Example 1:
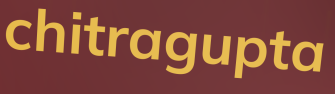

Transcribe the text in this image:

chitragupta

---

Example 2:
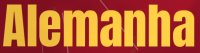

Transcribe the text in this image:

Alemanha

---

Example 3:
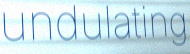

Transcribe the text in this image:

undulating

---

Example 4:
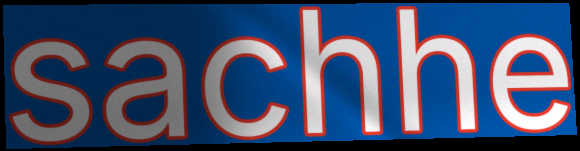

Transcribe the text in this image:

sachhe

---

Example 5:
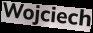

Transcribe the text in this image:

Wojciech